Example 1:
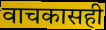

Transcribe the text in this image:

वाचकासही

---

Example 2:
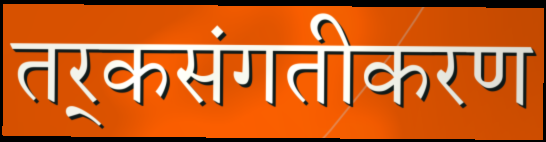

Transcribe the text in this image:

तर्कसंगतीकरण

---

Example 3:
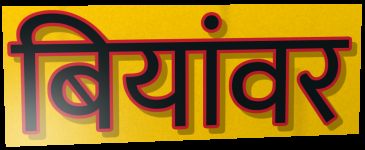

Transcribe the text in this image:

बियांवर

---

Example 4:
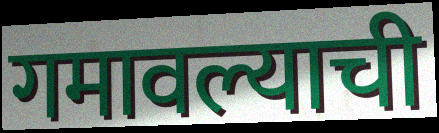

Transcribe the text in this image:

गमावल्याची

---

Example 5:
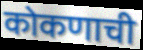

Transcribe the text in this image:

कोकणाची